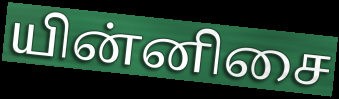
யின்னிசை